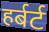
हर्बर्ट